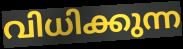
വിധിക്കുന്ന